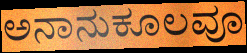
ಅನಾನುಕೂಲವೂ